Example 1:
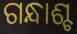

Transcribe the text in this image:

ଗନ୍ଧାଶ୍ଚ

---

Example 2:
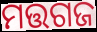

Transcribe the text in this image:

ମତ୍ତଗଜ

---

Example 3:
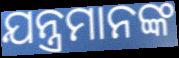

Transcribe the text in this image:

ଯନ୍ତ୍ରମାନଙ୍କ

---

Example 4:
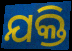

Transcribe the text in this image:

ଯକ୍ତି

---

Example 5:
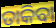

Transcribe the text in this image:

ଡାକିବା